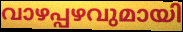
വാഴപ്പഴവുമായി